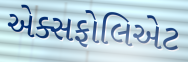
એક્સફોલિએટ